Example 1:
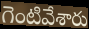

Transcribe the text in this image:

గెంటివేశారు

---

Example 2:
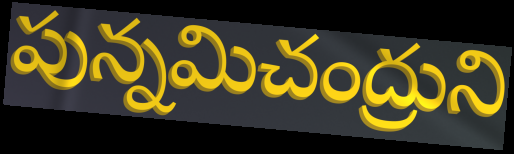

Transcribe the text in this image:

పున్నమిచంద్రుని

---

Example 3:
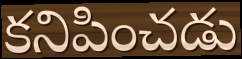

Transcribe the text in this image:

కనిపించడు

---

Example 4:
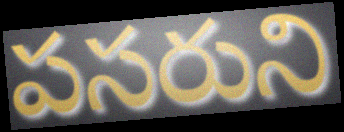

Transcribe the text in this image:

పసరుని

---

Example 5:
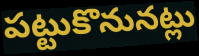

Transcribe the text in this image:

పట్టుకొనునట్లు